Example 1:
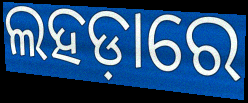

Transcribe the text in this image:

ଲହଡ଼ାରେ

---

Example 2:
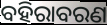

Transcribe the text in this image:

ବହିରାବରଣ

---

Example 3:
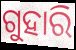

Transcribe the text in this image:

ଗୁହାରି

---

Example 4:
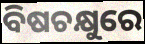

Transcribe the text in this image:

ବିଷଚକ୍ଷୁରେ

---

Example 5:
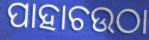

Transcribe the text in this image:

ପାହାଚଉଠା